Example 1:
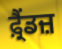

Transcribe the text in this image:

ਫ਼੍ਰੈਂਡਜ਼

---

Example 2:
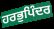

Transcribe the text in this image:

ਹਰਭੁਪਿੰਦਰ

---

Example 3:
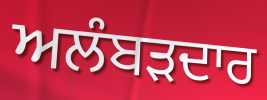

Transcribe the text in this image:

ਅਲੰਬੜਦਾਰ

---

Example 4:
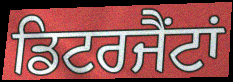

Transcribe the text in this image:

ਡਿਟਰਜੈਂਟਾਂ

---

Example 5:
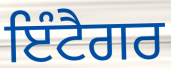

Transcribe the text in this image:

ਇੰਟੈਗਰ